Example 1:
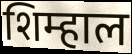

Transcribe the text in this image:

शिम्हाल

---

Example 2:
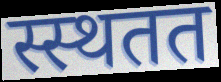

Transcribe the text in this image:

स्स्थतत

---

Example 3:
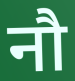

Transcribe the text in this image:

नौ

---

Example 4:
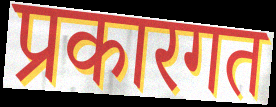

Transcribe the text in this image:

प्रकारगत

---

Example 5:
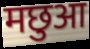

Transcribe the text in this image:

मछुआ